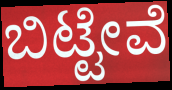
ಬಿಟ್ಟೇವೆ